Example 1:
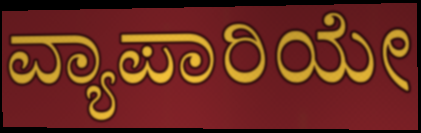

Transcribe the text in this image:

ವ್ಯಾಪಾರಿಯೇ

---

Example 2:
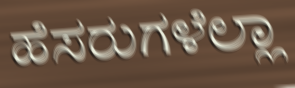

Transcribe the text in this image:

ಹೆಸರುಗಳೆಲ್ಲಾ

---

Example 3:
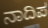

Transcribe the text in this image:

ನಾದಿಪ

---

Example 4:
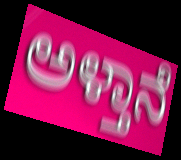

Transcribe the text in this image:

ಅಳ್ತಾನೆ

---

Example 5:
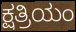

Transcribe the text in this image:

ಕ್ಷತ್ರಿಯಂ